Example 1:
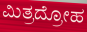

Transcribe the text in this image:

ಮಿತ್ರದ್ರೋಹ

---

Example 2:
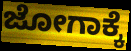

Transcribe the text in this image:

ಜೋಗಾಕ್ಕೆ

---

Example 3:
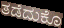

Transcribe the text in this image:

ತಡೆದುಕೊ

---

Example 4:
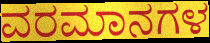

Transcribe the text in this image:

ವರಮಾನಗಳ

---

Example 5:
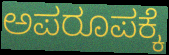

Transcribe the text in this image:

ಅಪರೂಪಕ್ಕೆ